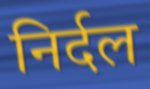
निर्दल